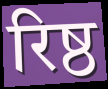
रिष्ठ